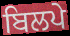
ਬਿਲਪੇ